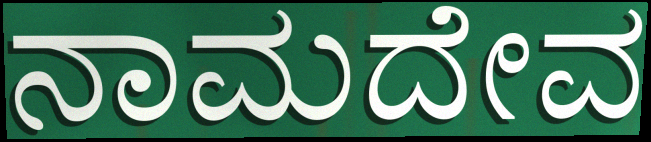
ನಾಮದೇವ